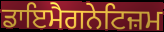
ਡਾਇਮੈਗਨੇਟਿਜ਼ਮ